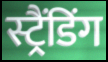
स्ट्रैंडिंग